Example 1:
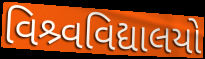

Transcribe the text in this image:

વિશ્ર્વવિદ્યાલયો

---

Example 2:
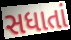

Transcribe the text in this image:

સધાતાં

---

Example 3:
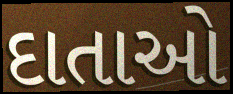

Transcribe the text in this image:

દાતાઓ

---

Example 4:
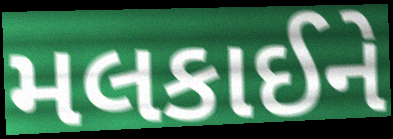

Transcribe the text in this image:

મલકાઈને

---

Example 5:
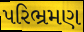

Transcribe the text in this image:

પરિભ્રમણ